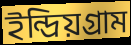
ইন্দ্রিয়গ্রাম